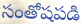
సంతోషపడి